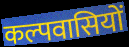
कल्पवासियों